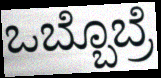
ಒಬ್ಬೊಬ್ರೆ